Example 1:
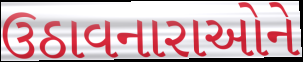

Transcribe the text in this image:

ઉઠાવનારાઓને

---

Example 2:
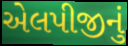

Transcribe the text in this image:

એલપીજીનું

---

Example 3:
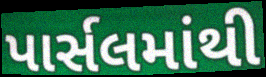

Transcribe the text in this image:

પાર્સલમાંથી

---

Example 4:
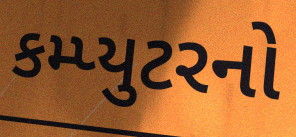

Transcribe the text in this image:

કમ્પ્યુટરનો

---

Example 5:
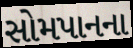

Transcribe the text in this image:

સોમપાનના